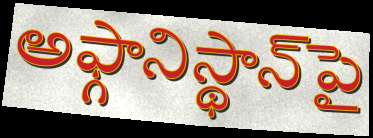
అఫ్గానిస్థాన్‌పై